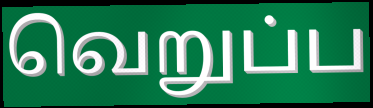
வெறுப்ப